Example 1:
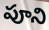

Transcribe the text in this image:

పూని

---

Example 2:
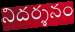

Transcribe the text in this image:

నిదర్శనం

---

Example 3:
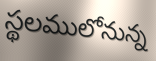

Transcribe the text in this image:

స్థలములోనున్న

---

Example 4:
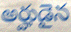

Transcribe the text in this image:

అర్హుడైన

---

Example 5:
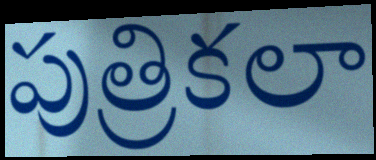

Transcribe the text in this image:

పుత్రికలా